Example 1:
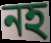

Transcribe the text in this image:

নহ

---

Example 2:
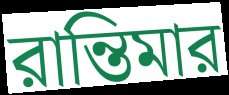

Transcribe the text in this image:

রান্তিমার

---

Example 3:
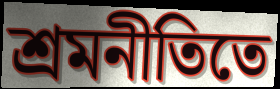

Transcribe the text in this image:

শ্রমনীতিতে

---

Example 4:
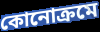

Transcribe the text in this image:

কোনোক্রমে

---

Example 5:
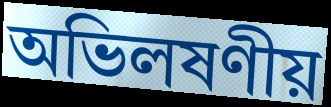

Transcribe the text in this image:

অভিলষণীয়